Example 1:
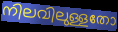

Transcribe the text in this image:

നിലവിലുള്ളതോ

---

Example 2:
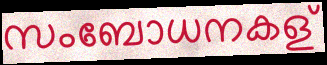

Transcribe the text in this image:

സംബോധനകള്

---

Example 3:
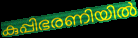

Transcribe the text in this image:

കുപ്പിഭരണിയിൽ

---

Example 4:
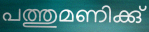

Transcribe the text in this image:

പത്തുമണിക്കു്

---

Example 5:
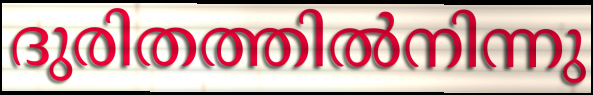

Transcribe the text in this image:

ദുരിതത്തിൽനിന്നു